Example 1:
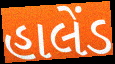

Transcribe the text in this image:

હાલેંડ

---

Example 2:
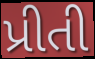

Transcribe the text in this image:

પ્રીતી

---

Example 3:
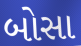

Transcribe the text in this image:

બોસા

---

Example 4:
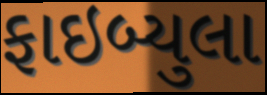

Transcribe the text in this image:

ફાઇબ્યુલા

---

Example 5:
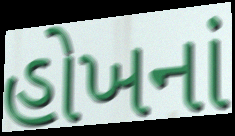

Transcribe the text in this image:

હોખનાં